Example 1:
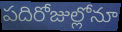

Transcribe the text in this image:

పదిరోజుల్లోనూ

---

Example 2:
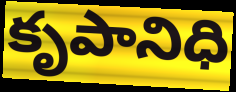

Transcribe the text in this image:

కృపానిధి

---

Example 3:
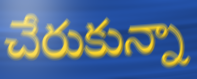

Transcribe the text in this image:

చేరుకున్నా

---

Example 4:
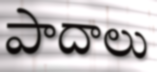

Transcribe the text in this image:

పాదాలు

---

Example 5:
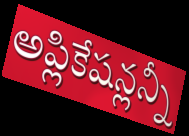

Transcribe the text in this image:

అప్లికేషన్లన్నీ